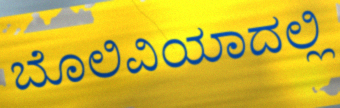
ಬೊಲಿವಿಯಾದಲ್ಲಿ